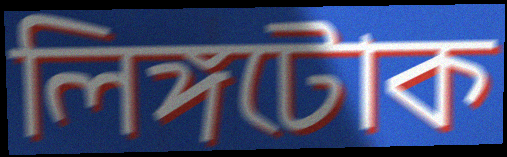
লিঙ্গটোক